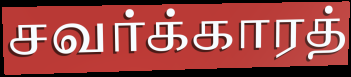
சவர்க்காரத்